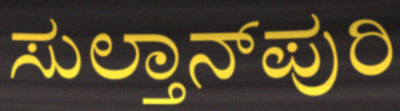
ಸುಲ್ತಾನ್‌ಪುರಿ